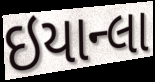
ઇયાન્લા